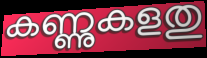
കണ്ണുകളതു